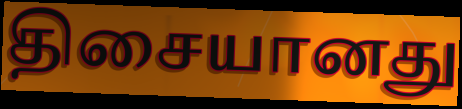
திசையானது